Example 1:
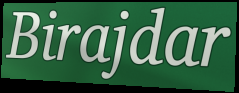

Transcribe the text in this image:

Birajdar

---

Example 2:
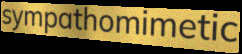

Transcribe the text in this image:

sympathomimetic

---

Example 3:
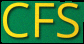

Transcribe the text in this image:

CFS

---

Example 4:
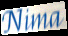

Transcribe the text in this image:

Nima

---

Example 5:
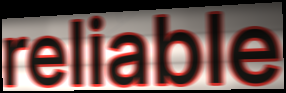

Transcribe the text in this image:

reliable